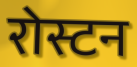
रोस्टन